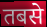
तबसे